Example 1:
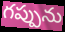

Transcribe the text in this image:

గప్పును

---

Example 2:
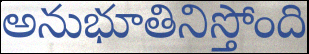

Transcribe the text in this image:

అనుభూతినిస్తోంది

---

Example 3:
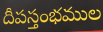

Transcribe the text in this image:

దీపస్తంభముల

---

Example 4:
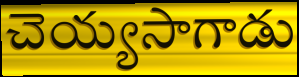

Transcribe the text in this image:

చెయ్యసాగాడు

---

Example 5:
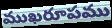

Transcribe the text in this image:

ముఖరూపము